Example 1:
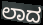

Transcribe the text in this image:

ಲಾದ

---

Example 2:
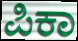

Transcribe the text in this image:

ಪಿಕಾ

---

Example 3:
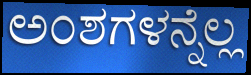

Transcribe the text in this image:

ಅಂಶಗಳನ್ನೆಲ್ಲ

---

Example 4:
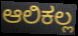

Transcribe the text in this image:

ಆಲಿಕಲ್ಲ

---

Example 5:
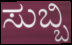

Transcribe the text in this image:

ಸುಬ್ಬಿ